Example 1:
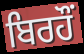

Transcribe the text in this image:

ਬਿਰਹੌਂ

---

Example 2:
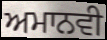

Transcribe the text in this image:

ਅਮਾਨਵੀ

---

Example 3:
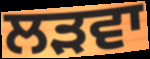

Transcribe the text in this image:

ਲੜਵਾ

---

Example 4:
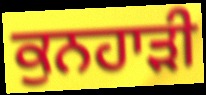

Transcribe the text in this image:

ਕੁਨਹਾੜੀ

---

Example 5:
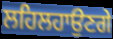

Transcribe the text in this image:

ਲਹਿਲਹਾਉਣਗੇ